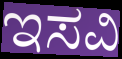
ಇಸವಿ